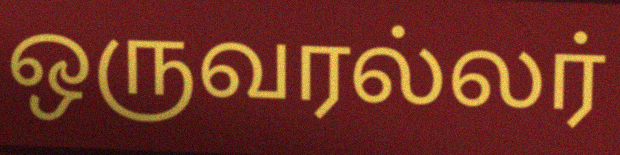
ஒருவரல்லர்